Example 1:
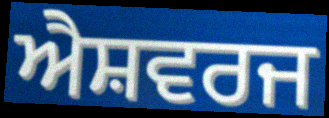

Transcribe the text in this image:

ਐਸ਼ਵਰਜ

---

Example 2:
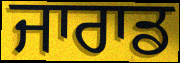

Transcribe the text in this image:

ਜਾਰਾਡ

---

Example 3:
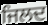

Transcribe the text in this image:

ਜਿਲਦ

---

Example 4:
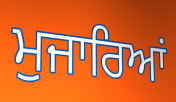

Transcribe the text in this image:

ਮੁਜਾਰਿਆਂ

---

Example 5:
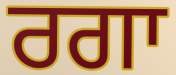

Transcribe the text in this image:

ਰਗਾ